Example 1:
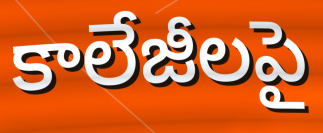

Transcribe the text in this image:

కాలేజీలపై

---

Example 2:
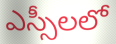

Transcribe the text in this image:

ఎస్సీలలో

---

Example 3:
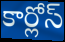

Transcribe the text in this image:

కార్లోస్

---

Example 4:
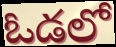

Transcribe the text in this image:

ఓడలో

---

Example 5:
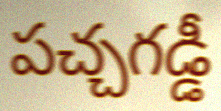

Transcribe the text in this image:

పచ్చగడ్డీ